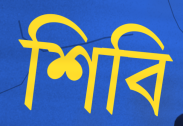
শিবি